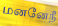
மனனேநீ